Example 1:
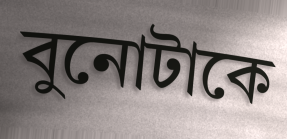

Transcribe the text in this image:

বুনোটাকে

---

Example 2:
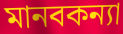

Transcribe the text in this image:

মানবকন্যা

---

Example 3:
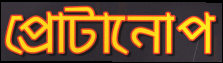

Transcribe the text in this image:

প্রোটানোপ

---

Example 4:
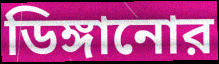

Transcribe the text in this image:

ডিঙ্গানোর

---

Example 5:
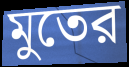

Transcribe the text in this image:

মুতের